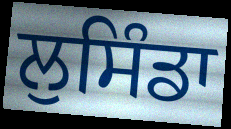
ਲੁਸਿੰਡਾ